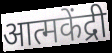
आत्मकेंद्री